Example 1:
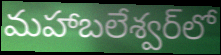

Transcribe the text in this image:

మహాబలేశ్వర్‌లో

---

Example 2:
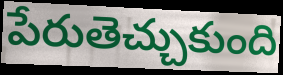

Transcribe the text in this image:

పేరుతెచ్చుకుంది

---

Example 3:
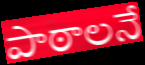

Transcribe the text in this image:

పాఠాలనే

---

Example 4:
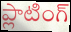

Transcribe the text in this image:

ప్లాటింగ్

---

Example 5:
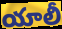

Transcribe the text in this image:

యాలీ